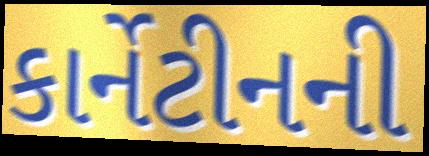
કાર્નેટીનની